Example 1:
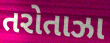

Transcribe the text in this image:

તરોતાઝા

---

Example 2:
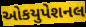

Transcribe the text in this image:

ઓકયુપેશનલ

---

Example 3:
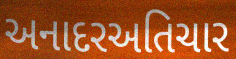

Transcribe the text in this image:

અનાદરઅતિચાર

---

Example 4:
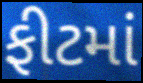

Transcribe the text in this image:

ફીટમાં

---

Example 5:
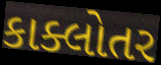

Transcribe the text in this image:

કાક્લોતર